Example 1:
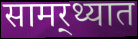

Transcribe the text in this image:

सामर्थ्यात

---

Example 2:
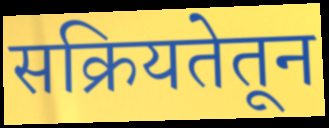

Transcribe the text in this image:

सक्रियतेतून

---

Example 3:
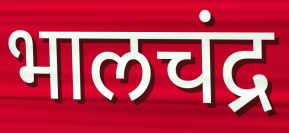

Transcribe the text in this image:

भालचंद्र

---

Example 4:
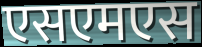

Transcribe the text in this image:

एसएमएस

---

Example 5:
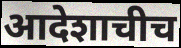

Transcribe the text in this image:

आदेशाचीच